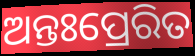
ଅନ୍ତଃପ୍ରେରିତ